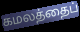
கமலத்தைப்